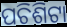
ପଚିଶିଟା